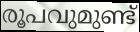
രൂപവുമുണ്ട്